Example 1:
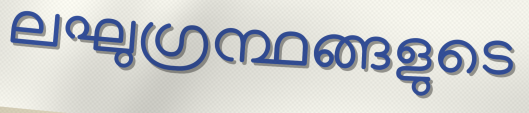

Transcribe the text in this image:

ലഘുഗ്രന്ഥങ്ങളുടെ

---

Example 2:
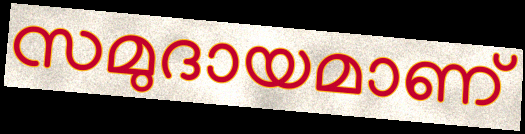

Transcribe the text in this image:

സമുദായമാണ്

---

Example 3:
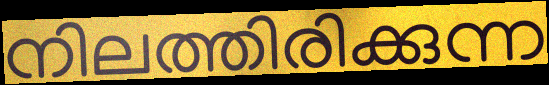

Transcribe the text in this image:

നിലത്തിരിക്കുന്ന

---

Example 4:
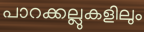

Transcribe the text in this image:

പാറക്കല്ലുകളിലും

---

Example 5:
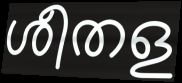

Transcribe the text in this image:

ശീതള